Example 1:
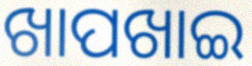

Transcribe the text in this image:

ଖାପଖାଇ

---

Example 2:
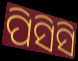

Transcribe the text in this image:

ପିସିସି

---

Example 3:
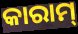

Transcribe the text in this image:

କାରାମ୍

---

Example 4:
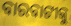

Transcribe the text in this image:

ବାରବାଟୀକୁ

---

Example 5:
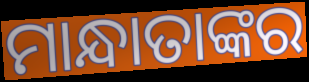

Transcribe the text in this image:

ମାନ୍ଧାତାଙ୍କର